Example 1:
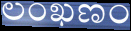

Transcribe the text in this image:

లంఖణం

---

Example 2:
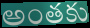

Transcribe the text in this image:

అంతకు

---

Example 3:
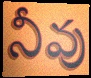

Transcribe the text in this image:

నీవు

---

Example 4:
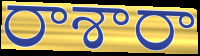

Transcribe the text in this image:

రాశారా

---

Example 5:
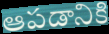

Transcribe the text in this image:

ఆపడానికి